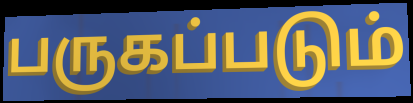
பருகப்படும்